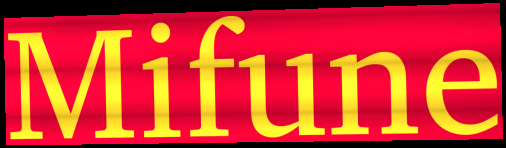
Mifune